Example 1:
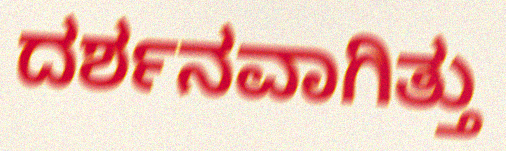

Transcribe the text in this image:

ದರ್ಶನವಾಗಿತ್ತು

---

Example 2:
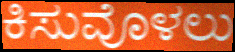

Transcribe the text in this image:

ಕಿಸುವೊಳಲು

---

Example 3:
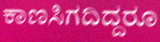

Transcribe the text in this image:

ಕಾಣಸಿಗದಿದ್ದರೂ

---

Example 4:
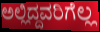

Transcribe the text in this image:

ಅಲ್ಲಿದ್ದವರಿಗೆಲ್ಲ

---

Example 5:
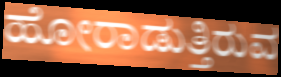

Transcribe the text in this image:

ಹೋರಾಡುತ್ತಿರುವ